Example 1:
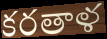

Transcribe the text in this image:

కరతాళ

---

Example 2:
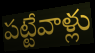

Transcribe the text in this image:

పట్టేవాళ్లు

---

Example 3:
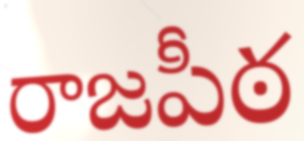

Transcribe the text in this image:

రాజపీఠ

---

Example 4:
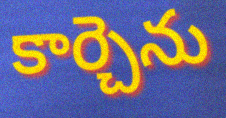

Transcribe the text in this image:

కార్చెను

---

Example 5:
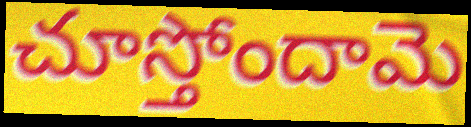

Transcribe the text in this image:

చూస్తోందామె